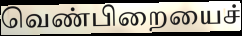
வெண்பிறையைச்